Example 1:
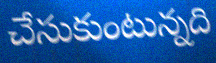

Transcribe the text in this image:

చేసుకుంటున్నది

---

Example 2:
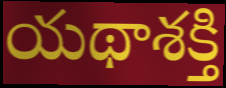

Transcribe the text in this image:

యథాశక్తి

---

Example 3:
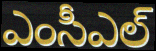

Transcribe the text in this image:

ఎంసీఎల్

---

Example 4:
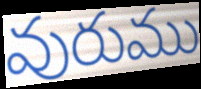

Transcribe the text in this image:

వురుము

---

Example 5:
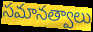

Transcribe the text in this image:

సమానత్వాలు